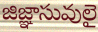
జిజ్ఞాసువులై